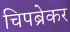
चिपब्रेकर